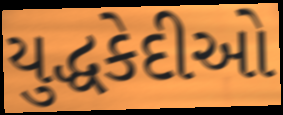
યુદ્ધકેદીઓ